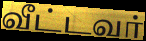
வீட்டவர்